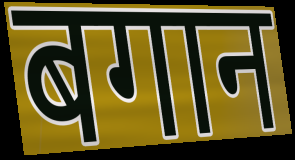
बगान